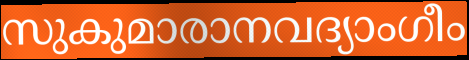
സുകുമാരാനവദ്യാംഗീം